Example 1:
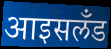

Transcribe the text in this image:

आइसलँड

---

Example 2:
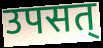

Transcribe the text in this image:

उपसत्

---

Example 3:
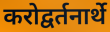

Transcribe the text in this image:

करोद्वर्तनार्थे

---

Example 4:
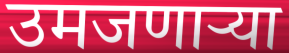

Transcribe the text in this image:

उमजणाऱ्या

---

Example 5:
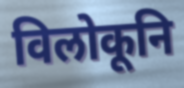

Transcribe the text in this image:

विलोकूनि